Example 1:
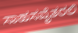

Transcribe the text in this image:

ಸಾಹಸವೈತರಲಿ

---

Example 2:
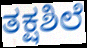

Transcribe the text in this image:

ತಕ್ಷಶಿಲೆ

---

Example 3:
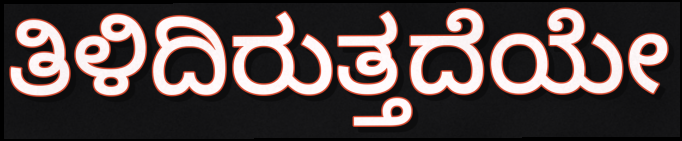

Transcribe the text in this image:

ತಿಳಿದಿರುತ್ತದೆಯೇ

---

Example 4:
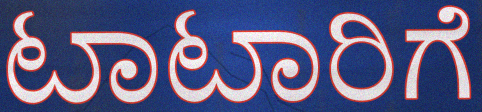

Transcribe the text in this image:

ಟಾಟಾರಿಗೆ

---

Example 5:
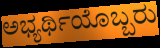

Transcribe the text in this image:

ಅಭ್ಯರ್ಥಿಯೊಬ್ಬರು